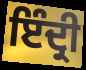
ਇੰਦ੍ਰੀ